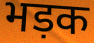
भड़क